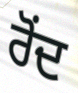
ਰੋਂਦ